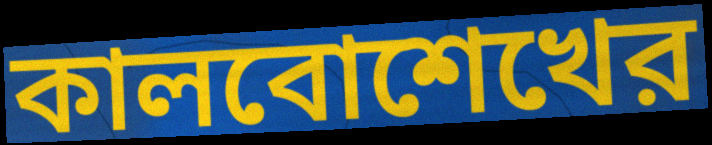
কালবোশেখের